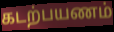
கடற்பயணம்